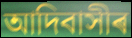
আদিবাসীৰ